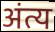
अंत्य